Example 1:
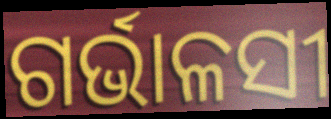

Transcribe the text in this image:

ଗର୍ଭାଳସୀ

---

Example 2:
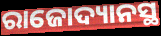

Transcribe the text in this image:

ରାଜୋଦ୍ୟାନସ୍ଥ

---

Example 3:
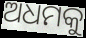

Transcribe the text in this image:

ଅଧମକୁ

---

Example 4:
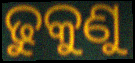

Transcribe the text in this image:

ଢୁକୁଣୁ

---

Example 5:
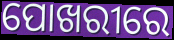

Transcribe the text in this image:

ପୋଖରୀରେ